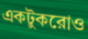
একটুকরোও